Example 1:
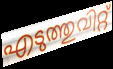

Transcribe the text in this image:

എടുത്തുവിറ്റ്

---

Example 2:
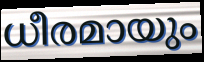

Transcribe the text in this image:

ധീരമായും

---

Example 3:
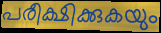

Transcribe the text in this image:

പരീക്ഷിക്കുകയും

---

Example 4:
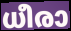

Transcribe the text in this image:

ധീരാ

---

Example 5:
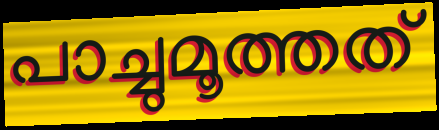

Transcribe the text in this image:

പാച്ചുമൂത്തത്